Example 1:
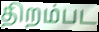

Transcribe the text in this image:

திறம்பட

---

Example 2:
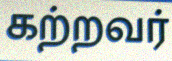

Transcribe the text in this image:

கற்றவர்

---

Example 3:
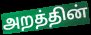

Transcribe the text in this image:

அறத்தின்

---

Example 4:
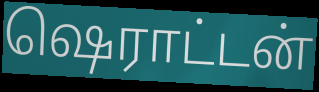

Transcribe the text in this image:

ஷெராட்டன்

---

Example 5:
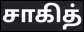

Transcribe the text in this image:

சாகித்